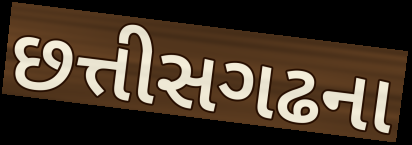
છત્તીસગઢના